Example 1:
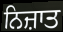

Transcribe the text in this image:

ਨਿਜ਼ਾਤ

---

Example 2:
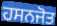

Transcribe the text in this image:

ਹਸਨਜੋਤ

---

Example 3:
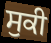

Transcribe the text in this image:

ਸੁਕੀ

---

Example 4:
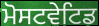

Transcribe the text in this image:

ਮੋਸਟਵੇਟਿਡ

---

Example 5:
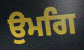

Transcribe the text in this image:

ਉਮਗਿ